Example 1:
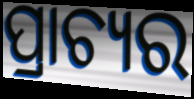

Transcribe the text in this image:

ପ୍ରାଚ୍ୟର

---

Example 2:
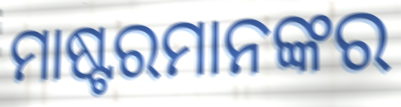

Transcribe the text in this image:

ମାଷ୍ଟରମାନଙ୍କର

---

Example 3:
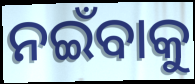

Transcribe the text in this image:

ନଇଁବାକୁ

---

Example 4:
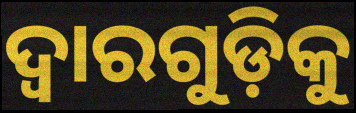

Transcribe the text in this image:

ଦ୍ୱାରଗୁଡ଼ିକୁ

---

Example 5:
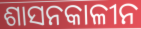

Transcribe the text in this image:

ଶାସନକାଳୀନ